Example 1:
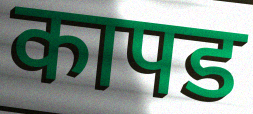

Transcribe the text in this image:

कापड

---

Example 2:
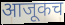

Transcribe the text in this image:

आजूकच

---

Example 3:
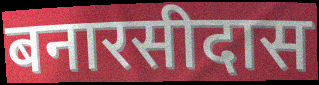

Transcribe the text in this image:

बनारसीदास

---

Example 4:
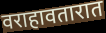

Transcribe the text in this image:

वराहावतारात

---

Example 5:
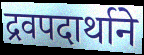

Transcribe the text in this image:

द्रवपदार्थाने